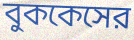
বুককেসের